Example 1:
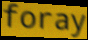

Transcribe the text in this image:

foray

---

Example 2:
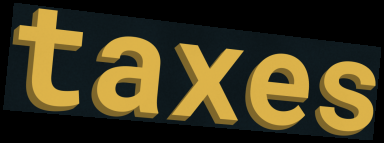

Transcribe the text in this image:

taxes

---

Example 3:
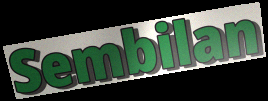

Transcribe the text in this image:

Sembilan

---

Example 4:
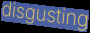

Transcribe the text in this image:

disgusting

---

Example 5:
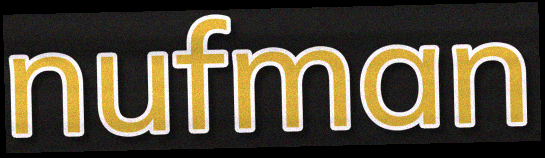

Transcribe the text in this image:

nufman